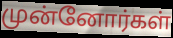
முன்னோர்கள்